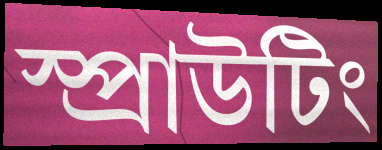
স্প্রাউটিং